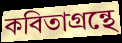
কবিতাগ্রন্থে